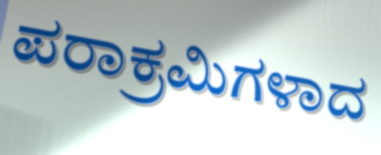
ಪರಾಕ್ರಮಿಗಳಾದ